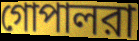
গোপালরা